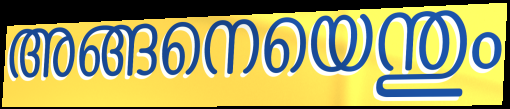
അങ്ങനെയെന്തും